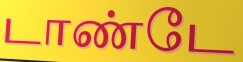
டாண்டே